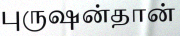
புருஷன்தான்